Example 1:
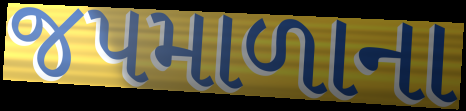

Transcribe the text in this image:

જપમાળાના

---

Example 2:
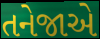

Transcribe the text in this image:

તનેજાએ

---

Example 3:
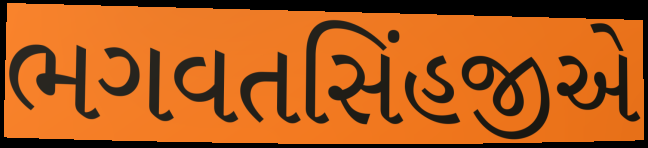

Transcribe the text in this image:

ભગવતસિંહજીએ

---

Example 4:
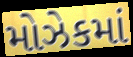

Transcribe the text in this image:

મોઝેકમાં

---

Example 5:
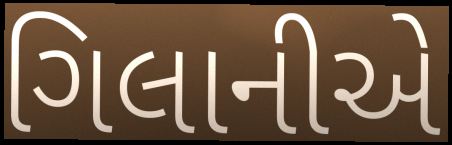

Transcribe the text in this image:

ગિલાનીએ